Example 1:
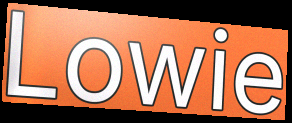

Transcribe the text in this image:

Lowie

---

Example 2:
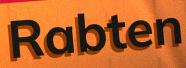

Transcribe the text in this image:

Rabten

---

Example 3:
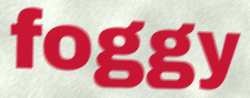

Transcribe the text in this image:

foggy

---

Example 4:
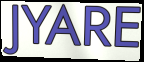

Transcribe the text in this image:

JYARE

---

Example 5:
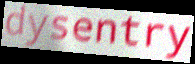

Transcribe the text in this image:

dysentry